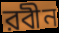
রবীন